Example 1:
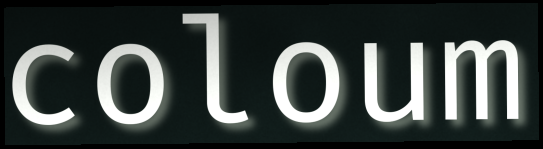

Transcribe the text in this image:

coloum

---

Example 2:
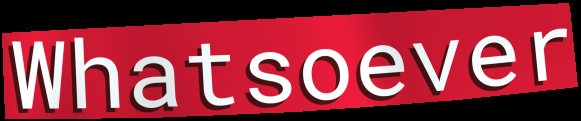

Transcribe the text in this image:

Whatsoever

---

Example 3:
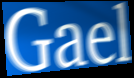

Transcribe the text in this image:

Gael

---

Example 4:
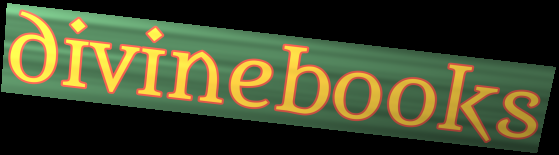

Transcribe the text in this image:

divinebooks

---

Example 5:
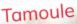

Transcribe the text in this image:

Tamoule